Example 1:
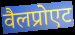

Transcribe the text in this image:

वैलप्रोएट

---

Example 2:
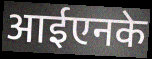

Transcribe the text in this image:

आईएनके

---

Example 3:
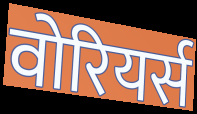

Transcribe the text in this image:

वोरियर्स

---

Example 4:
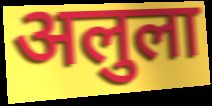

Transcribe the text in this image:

अलुला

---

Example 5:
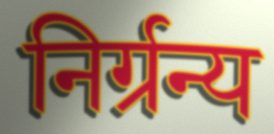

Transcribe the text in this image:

निर्ग्रन्य